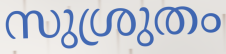
സുശ്രുതം